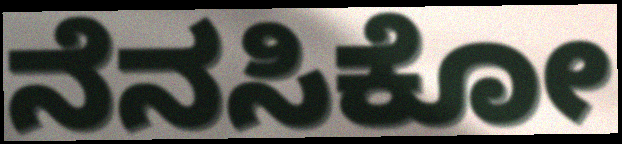
ನೆನಸಿಕೋ